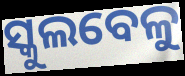
ସ୍କୁଲବେଳୁ